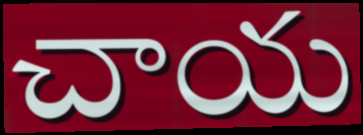
చాయ